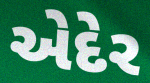
એદેર